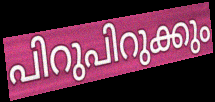
പിറുപിറുക്കും